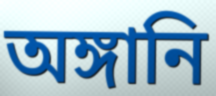
অঙ্গানি